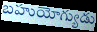
బహుయోగ్యుడు